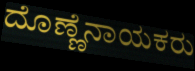
ದೊಣ್ಣೆನಾಯಕರು